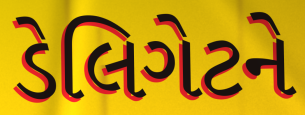
ડેલિગેટને